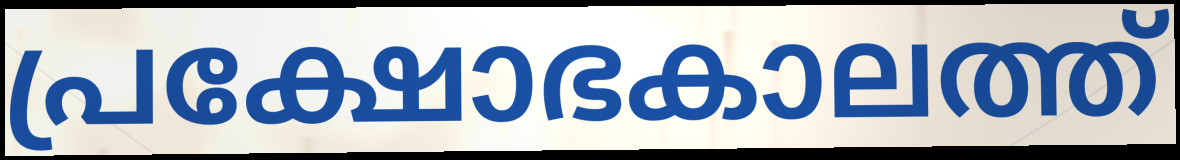
പ്രക്ഷോഭകാലത്ത്